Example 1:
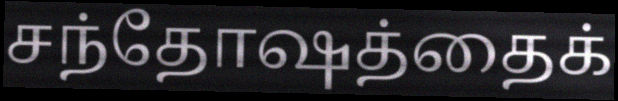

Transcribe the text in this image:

சந்தோஷத்தைக்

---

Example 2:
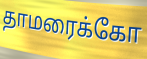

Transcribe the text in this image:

தாமரைக்கோ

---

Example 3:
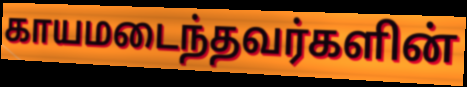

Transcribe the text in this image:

காயமடைந்தவர்களின்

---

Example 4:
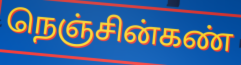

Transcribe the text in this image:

நெஞ்சின்கண்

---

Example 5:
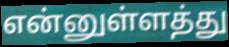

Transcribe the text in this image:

என்னுள்ளத்து